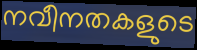
നവീനതകളുടെ